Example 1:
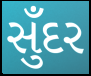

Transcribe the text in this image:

સુઁદર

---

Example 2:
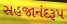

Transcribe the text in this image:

સહજાનંદરૂપ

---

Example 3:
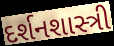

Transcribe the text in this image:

દર્શનશાસ્ત્રી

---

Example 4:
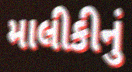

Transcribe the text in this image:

માલીકીનું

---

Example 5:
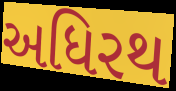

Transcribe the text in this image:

અધિરથ